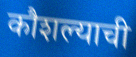
कौशल्याची